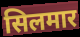
सिलमार